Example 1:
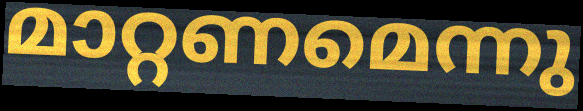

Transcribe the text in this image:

മാറ്റണമെന്നു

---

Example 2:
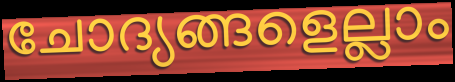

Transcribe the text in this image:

ചോദ്യങ്ങളെല്ലാം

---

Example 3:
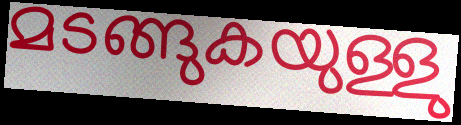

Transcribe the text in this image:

മടങ്ങുകയുള്ളു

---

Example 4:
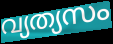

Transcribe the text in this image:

വ്യത്യസം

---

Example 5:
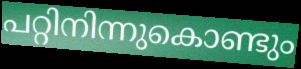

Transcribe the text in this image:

പറ്റിനിന്നുകൊണ്ടും